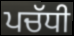
ਪਚੱਧੀ